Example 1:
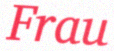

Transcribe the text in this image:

Frau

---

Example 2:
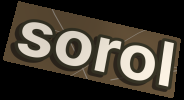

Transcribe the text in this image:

sorol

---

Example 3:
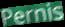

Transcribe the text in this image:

Pernis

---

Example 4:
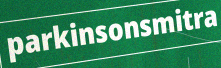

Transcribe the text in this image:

parkinsonsmitra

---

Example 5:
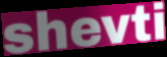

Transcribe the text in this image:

shevti